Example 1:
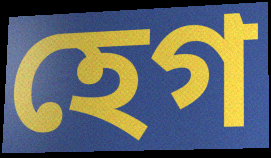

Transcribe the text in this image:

হেগ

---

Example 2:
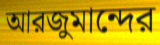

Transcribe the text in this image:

আরজুমান্দের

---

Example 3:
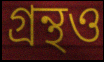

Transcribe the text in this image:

গ্রন্থও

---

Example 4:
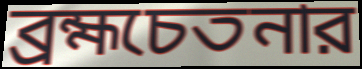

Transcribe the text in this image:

ব্রহ্মচেতনার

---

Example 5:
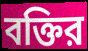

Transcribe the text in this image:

বক্তির